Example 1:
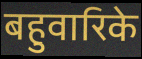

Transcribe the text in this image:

बहुवारिके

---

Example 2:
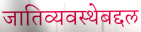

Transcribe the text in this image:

जातिव्यवस्थेबद्दल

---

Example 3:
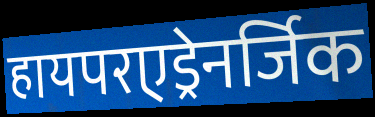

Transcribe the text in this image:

हायपरएड्रेनर्जिक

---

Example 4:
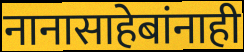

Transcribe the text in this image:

नानासाहेबांनाही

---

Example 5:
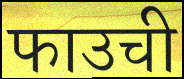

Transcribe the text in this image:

फाउची